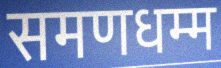
समणधम्म